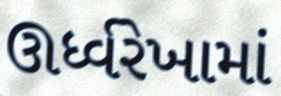
ઊર્ધ્વરેખામાં